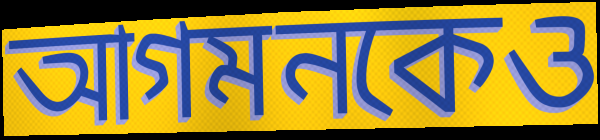
আগমনকেও